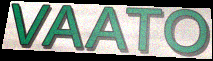
VAATO